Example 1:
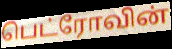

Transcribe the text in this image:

பெட்ரோவின்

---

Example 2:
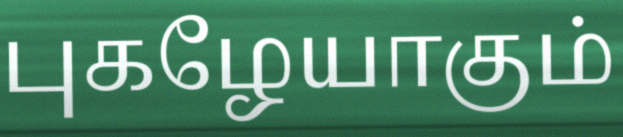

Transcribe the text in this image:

புகழேயாகும்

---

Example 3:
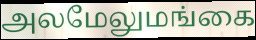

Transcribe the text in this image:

அலமேலுமங்கை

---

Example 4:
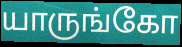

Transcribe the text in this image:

யாருங்கோ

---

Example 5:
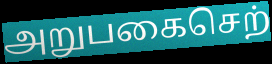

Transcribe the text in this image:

அறுபகைசெற்